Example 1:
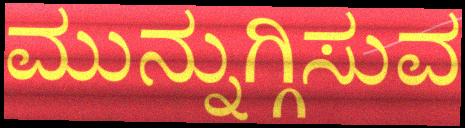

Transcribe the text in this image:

ಮುನ್ನುಗ್ಗಿಸುವ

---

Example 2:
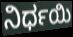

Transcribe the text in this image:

ನಿರ್ಧಯಿ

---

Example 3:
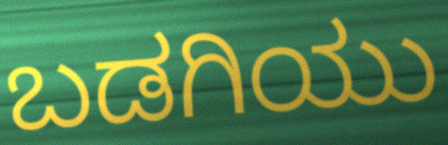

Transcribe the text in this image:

ಬಡಗಿಯು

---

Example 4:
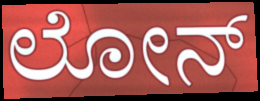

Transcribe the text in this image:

ಲೋನ್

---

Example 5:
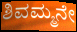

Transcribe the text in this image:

ಶಿವಮ್ಮನೇ